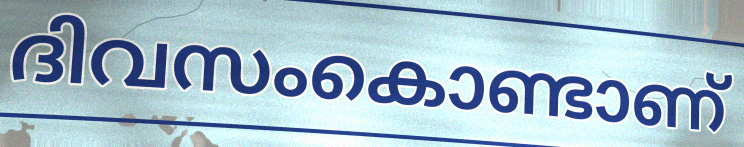
ദിവസംകൊണ്ടാണ്